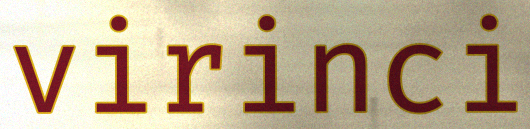
virinci